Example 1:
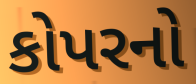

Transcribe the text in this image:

કોપરનો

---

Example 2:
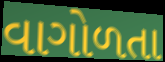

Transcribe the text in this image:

વાગોળતા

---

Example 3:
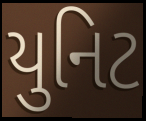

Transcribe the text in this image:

યુનિટ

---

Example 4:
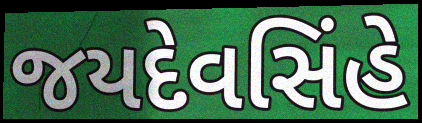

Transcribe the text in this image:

જયદેવસિંહે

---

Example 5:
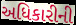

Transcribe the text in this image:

અધિકારીની